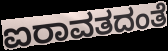
ಐರಾವತದಂತೆ